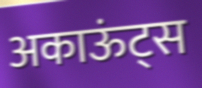
अकाऊंट्स